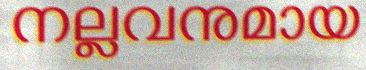
നല്ലവനുമായ